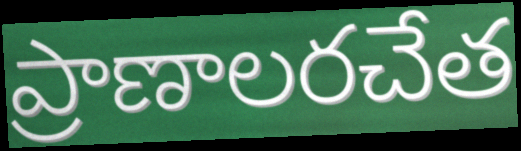
ప్రాణాలరచేత